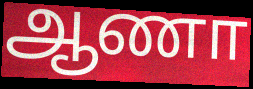
ஆணா